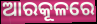
ଆରକୂଳରେ